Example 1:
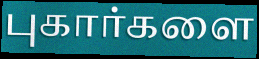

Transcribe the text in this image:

புகார்களை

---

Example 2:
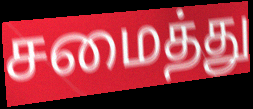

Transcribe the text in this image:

சமைத்து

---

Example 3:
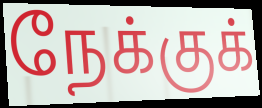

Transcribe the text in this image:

நேக்குக்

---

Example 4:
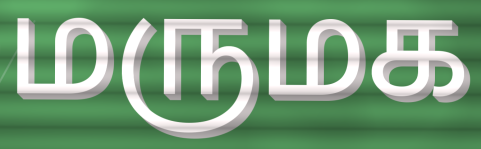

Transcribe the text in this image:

மருமக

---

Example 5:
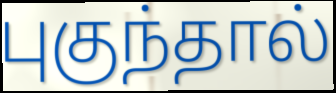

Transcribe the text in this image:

புகுந்தால்